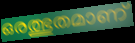
ഒരത്ഭുതമാണ്